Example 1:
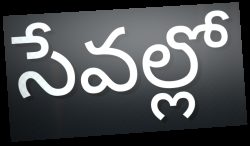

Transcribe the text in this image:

సేవల్లో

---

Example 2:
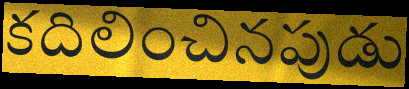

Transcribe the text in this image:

కదిలించినపుడు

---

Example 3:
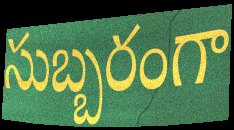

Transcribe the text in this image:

సుబ్బరంగా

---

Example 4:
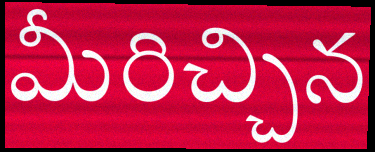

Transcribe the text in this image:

మీరిచ్చిన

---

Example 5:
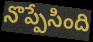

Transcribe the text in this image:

నొప్పేసింది